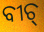
ବୀଚ୍